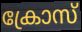
ക്രോസ്